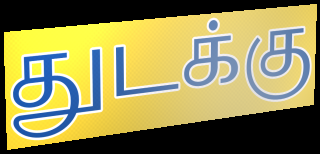
துடக்கு